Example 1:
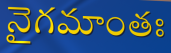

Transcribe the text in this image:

నైగమాంతః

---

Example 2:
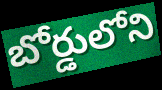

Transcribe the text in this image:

బోర్డులోని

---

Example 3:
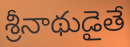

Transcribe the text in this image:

శ్రీనాథుడైతే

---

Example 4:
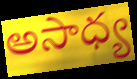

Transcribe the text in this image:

అసాధ్య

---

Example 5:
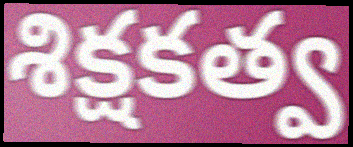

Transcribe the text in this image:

శిక్షకత్వ